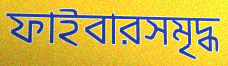
ফাইবারসমৃদ্ধ